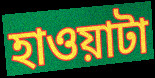
হাওয়াটা